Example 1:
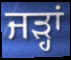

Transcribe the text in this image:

ਜੜ੍ਹਾਂ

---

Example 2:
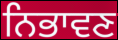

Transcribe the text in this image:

ਨਿਭਾਵਣ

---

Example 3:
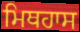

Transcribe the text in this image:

ਮਿਥਹਾਸ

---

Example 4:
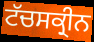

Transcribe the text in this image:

ਟੱਚਸਕ੍ਰੀਨ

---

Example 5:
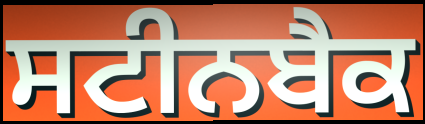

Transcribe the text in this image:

ਸਟੀਨਬੈਕ